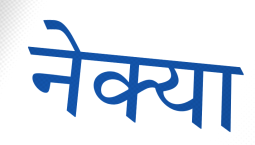
नेक्या